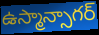
ఉస్మాన్సాగర్